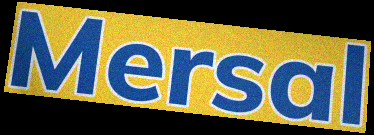
Mersal